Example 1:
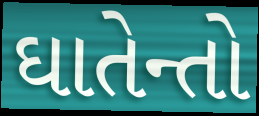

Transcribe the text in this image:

ઘાતેન્તો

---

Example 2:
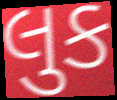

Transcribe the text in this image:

લુક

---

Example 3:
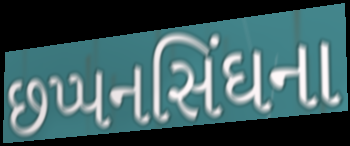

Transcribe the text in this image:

છપ્પનસિંઘના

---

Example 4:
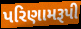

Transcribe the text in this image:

પરિણામરૂપી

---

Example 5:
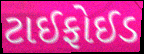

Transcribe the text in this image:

ટાઈફોઈડ